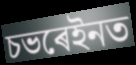
চভৰেইনত